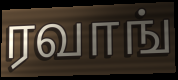
ரவாங்